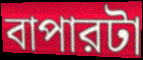
বাপারটা